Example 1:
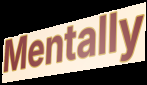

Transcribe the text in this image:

Mentally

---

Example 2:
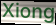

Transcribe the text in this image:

Xiong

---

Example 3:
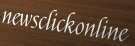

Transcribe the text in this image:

newsclickonline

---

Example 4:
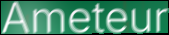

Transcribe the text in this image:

Ameteur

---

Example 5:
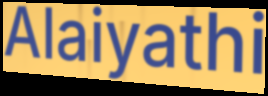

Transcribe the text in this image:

Alaiyathi